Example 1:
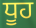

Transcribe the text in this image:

ਧੂਹ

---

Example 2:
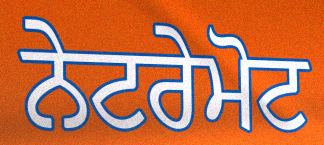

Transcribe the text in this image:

ਨੇਟਰੇਮੋਟ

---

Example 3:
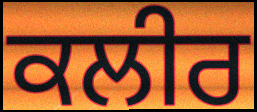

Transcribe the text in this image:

ਕਲੀਰ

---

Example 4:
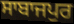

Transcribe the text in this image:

ਸਾਬਾਜਪੁਰ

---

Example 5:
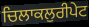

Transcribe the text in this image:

ਚਿਲਾਕਲੁਰੀਪੇਟ